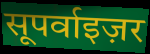
सूपर्वाइज़र